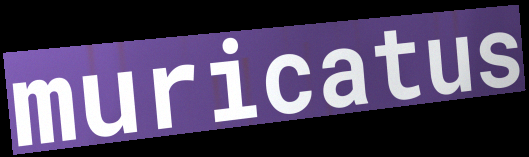
muricatus